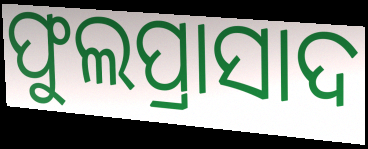
ଫୁଲପ୍ରାସାଦ